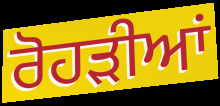
ਰੋਹੜੀਆਂ